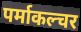
पर्माकल्चर